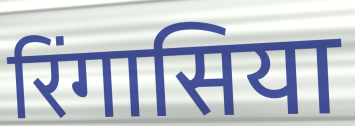
रिंगासिया